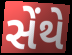
સેંથે